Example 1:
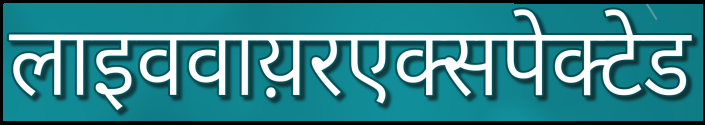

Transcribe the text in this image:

लाइववाय़रएक्सपेक्टेड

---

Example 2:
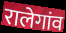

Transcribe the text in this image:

रालेगांव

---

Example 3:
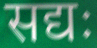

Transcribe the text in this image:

सद्यः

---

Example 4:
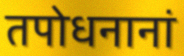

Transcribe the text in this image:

तपोधनानां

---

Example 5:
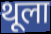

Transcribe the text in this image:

थूला